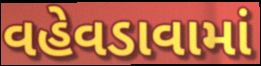
વહેવડાવામાં